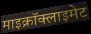
माइक्रॉक्लाइमेट